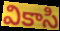
వికాసి